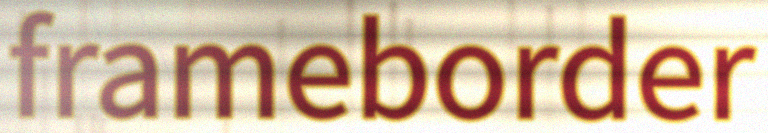
frameborder